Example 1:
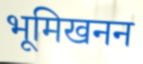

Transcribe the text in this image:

भूमिखनन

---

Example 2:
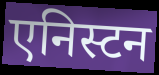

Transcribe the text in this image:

एनिस्टन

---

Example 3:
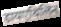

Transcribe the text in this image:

डायएथिलिन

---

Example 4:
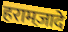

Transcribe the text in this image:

हरामज़ादे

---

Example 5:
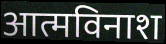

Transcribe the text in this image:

आत्मविनाश